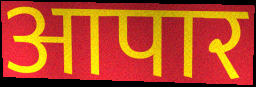
आपार